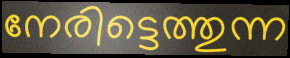
നേരിട്ടെത്തുന്ന